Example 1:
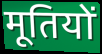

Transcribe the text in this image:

मूतियों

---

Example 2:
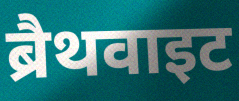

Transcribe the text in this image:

ब्रैथवाइट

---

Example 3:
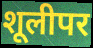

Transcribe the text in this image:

शूलीपर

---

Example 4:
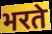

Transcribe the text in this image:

भरते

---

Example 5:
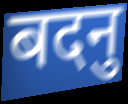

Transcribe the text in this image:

बदनु